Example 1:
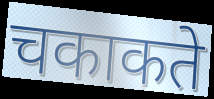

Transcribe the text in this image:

चकाकते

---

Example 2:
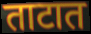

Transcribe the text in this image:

ताटात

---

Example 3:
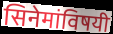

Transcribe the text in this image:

सिनेमांविषयी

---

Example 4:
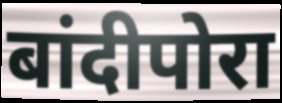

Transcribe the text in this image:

बांदीपोरा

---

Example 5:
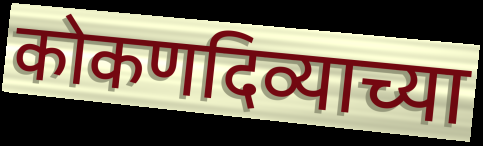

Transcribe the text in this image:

कोकणदिव्याच्या